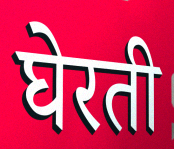
घेरती